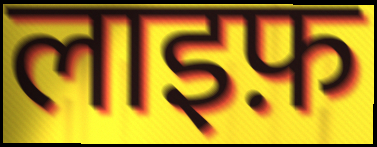
लाइफ़